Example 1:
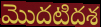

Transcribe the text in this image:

మొదటిదశ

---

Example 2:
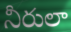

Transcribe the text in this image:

నీరులా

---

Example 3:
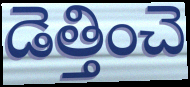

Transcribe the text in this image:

డెత్తించె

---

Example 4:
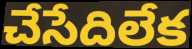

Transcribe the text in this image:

చేసేదిలేక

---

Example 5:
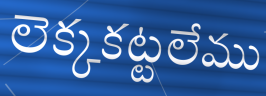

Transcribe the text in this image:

లెక్కకట్టలేము